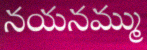
నయనమ్ము